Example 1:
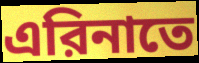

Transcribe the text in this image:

এরিনাতে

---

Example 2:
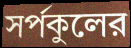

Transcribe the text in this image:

সর্পকুলের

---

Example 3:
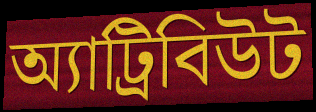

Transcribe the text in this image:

অ্যাট্রিবিউট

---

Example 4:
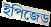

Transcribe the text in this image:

ইপিজেড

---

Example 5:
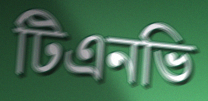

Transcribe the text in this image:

টিএনভি